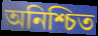
অনিশ্চিত